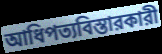
আধিপত্যবিস্তারকারী